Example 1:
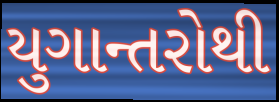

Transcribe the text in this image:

યુગાન્તરોથી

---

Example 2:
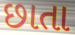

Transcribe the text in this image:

છાતા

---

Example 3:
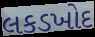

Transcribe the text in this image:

લકડખોદ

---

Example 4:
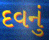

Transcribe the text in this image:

દવનું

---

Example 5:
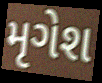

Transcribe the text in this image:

મૃગેશ